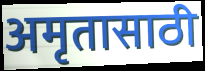
अमृतासाठी